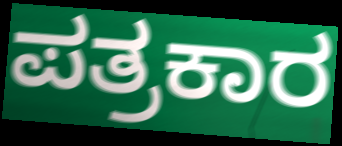
ಪತ್ರಕಾರ